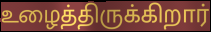
உழைத்திருக்கிறார்